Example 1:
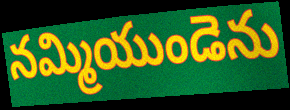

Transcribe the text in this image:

నమ్మియుండెను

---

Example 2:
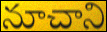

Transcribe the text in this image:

నూచాని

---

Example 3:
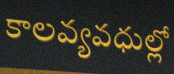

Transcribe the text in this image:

కాలవ్యవధుల్లో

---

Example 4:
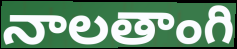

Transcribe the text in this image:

నాలతాంగి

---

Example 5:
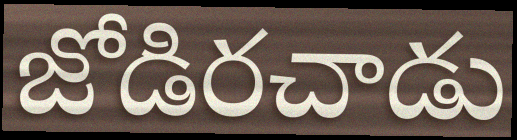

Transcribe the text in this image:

జోడిరచాడు